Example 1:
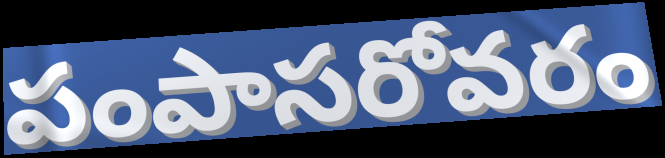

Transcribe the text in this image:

పంపాసరోవరం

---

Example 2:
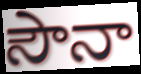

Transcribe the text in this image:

సౌనా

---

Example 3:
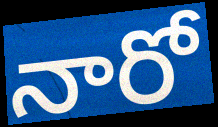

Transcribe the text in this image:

నారో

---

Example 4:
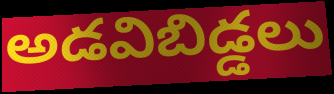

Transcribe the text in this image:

అడవిబిడ్డలు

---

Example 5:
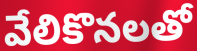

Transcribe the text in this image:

వేలికొనలతో